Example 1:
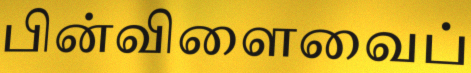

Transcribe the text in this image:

பின்விளைவைப்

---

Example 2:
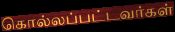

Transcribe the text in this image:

கொல்லப்பட்டவர்கள்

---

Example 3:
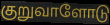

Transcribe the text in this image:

குறுவாளோடு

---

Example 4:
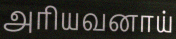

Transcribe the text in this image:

அரியவனாய்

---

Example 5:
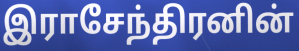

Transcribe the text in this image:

இராசேந்திரனின்